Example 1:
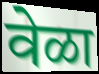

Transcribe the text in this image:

वेळा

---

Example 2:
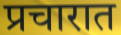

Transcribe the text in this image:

प्रचारात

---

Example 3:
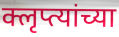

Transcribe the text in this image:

क्लृप्त्यांच्या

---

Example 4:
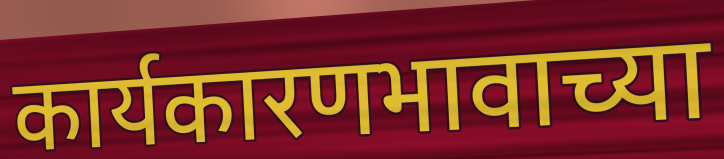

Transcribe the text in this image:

कार्यकारणभावाच्या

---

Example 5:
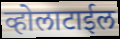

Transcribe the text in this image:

व्होलाटाईल